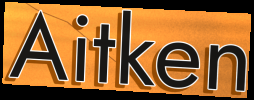
Aitken